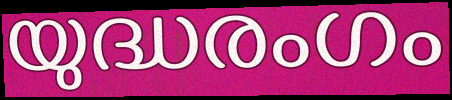
യുദ്ധരംഗം